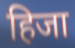
हिजा